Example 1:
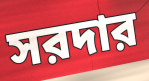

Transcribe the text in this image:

সরদার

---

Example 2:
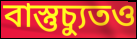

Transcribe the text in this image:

বাস্তুচ্যুতও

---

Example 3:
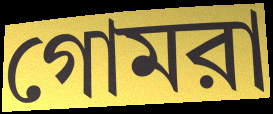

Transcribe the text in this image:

গোমরা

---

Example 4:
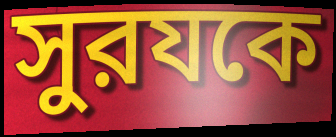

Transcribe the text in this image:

সুরযকে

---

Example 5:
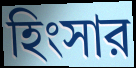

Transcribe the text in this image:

হিংসার